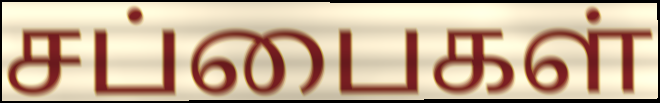
சப்பைகள்